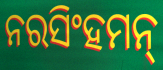
ନରସିଂହମନ୍